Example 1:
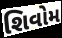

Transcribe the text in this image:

શિવોમ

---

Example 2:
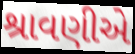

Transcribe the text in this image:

શ્રાવણીએ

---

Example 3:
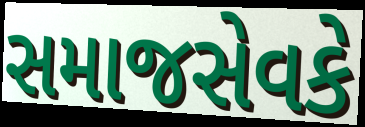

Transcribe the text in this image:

સમાજસેવકે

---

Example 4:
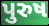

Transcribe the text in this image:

પુરુષ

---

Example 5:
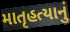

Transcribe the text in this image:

માતૃહત્યાનું